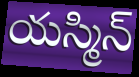
యస్మిన్